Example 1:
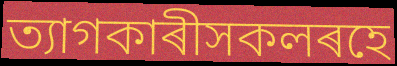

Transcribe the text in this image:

ত্যাগকাৰীসকলৰহে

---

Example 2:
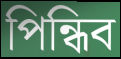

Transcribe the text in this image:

পিন্ধিব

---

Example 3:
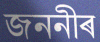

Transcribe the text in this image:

জননীৰ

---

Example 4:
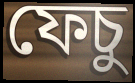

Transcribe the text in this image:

ফেচু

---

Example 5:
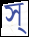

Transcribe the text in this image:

স্